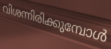
വിശന്നിരിക്കുമ്പോൾ